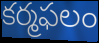
కర్మఫలం